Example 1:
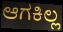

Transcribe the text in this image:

ಆಗಕಿಲ್ಲ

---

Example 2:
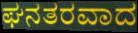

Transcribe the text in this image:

ಘನತರವಾದ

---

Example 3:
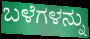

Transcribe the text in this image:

ಬಳೆಗಳನ್ನು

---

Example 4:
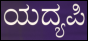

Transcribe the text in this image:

ಯದ್ಯಪಿ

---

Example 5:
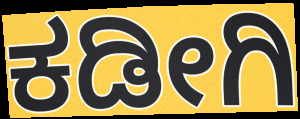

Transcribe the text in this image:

ಕಡೀಗಿ